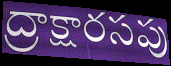
ద్రాక్షారసపు